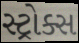
સ્ટ્રોક્સ